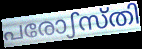
പരോഽസ്തി